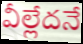
వీల్లేదనే